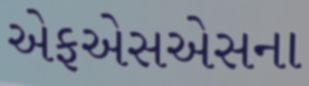
એફએસએસના